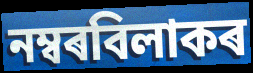
নম্বৰবিলাকৰ